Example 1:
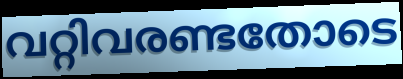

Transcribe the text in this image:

വറ്റിവരണ്ടതോടെ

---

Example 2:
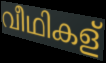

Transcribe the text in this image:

വീഥികള്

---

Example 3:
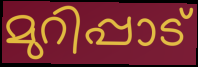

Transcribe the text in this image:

മുറിപ്പാട്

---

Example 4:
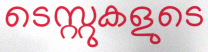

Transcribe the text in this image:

ടെസ്റ്റുകളുടെ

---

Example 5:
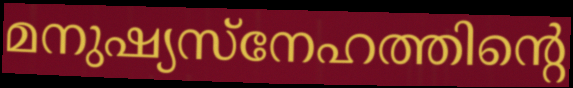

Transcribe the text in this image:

മനുഷ്യസ്നേഹത്തിന്റെ